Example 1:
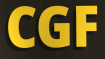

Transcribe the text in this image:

CGF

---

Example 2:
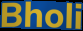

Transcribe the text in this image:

Bholi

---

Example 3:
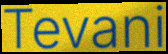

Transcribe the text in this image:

Tevani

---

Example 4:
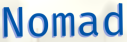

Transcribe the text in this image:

Nomad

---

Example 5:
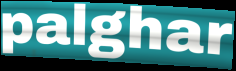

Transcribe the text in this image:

palghar